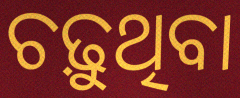
ଚଢ଼ୁଥିବା